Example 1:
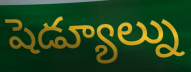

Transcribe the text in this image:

షెడ్యూల్ను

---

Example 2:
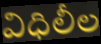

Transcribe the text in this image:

విధిలీల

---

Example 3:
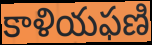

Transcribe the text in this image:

కాళియఫణి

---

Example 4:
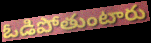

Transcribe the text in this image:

ఓడిపోతుంటారు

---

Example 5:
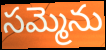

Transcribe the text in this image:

సమ్మెను